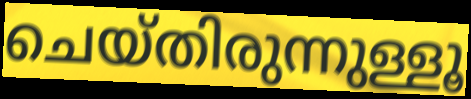
ചെയ്തിരുന്നുള്ളൂ